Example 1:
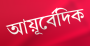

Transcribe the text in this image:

আয়ূর্বেদিক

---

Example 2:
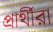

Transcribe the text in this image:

প্রার্থীরা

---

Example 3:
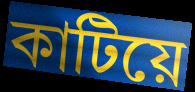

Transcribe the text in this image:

কাটিয়ে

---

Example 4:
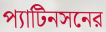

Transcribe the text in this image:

প্যাটিনসনের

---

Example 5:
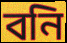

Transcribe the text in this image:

বনি